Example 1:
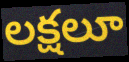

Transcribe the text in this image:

లక్షలూ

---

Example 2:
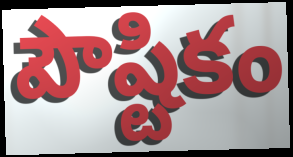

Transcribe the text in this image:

పౌష్టికం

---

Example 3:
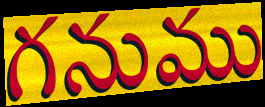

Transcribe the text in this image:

గనుము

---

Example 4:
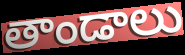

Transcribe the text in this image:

తాండాలు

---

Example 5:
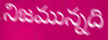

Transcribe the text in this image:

నిజమున్నది